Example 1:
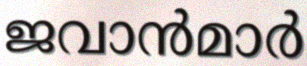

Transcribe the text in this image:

ജവാൻമാർ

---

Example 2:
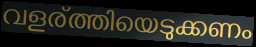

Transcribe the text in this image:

വളര്ത്തിയെടുക്കണം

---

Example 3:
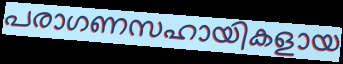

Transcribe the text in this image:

പരാഗണസഹായികളായ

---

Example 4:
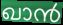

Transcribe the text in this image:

ഖാൻ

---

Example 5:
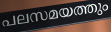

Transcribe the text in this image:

പലസമയത്തും